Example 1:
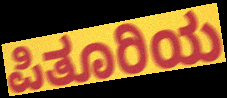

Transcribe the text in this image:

ಪಿತೂರಿಯ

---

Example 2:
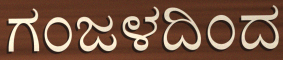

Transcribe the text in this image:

ಗಂಜಳದಿಂದ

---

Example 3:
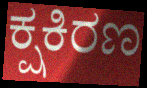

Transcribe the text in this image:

ಕ್ಷಕಿರಣ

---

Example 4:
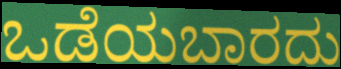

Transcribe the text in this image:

ಒಡೆಯಬಾರದು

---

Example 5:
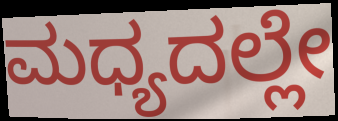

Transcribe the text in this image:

ಮಧ್ಯದಲ್ಲೇ